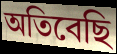
অতিবেছি